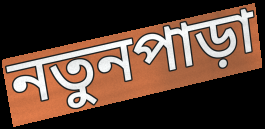
নতুনপাড়া